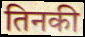
तिनकी